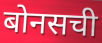
बोनसची